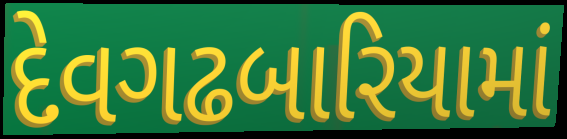
દેવગઢબારિયામાં